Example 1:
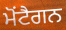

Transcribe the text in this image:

ਮੋਂਟੈਗਨ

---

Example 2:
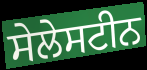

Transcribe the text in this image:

ਸੇਲੇਸਟੀਨ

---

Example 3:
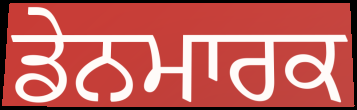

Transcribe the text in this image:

ਡੇਨਮਾਰਕ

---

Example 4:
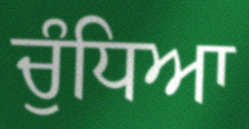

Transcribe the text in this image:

ਚੁੰਧਿਆ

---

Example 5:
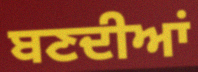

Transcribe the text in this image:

ਬਣਦੀਆਂ